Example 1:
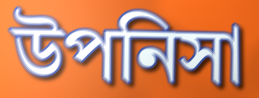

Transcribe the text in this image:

উপনিসা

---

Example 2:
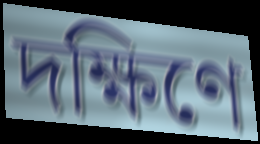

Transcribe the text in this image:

দক্ষিণে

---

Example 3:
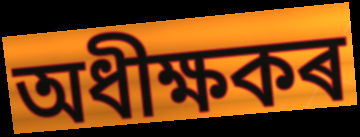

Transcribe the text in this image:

অধীক্ষকৰ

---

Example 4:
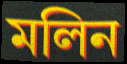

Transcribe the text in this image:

মলিন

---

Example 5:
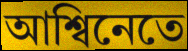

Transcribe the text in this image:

আশ্বিনেতে